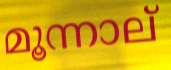
മൂന്നാല്